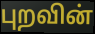
புறவின்